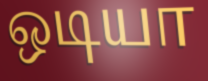
ஒடியா